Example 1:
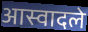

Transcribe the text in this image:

आस्वादले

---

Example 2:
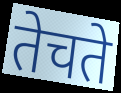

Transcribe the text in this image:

तेचते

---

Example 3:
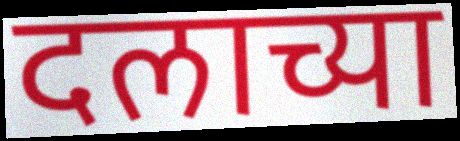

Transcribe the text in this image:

दलाच्या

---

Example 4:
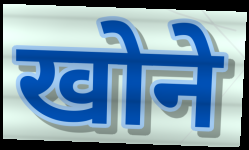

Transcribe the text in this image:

खोने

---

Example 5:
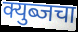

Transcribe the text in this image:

क्युब्जचा